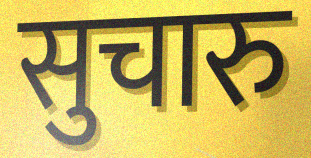
सुचारु